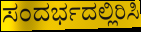
ಸಂದರ್ಭದಲ್ಲಿರಿಸಿ